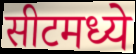
सीटमध्ये